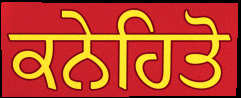
ਕਨੇਹਿਤੋ